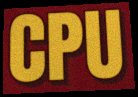
CPU